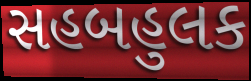
સહબહુલક